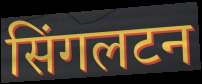
सिंगलटन